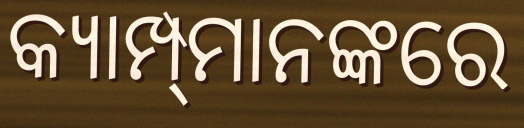
କ୍ୟାମ୍ପ୍‍ମାନଙ୍କରେ